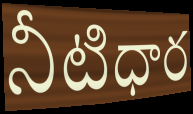
నీటిధార